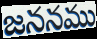
జననము